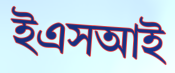
ইএসআই